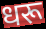
धरू